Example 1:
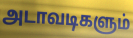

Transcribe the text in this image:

அடாவடிகளும்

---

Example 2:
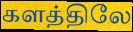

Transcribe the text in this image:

களத்திலே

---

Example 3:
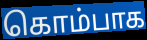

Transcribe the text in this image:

கொம்பாக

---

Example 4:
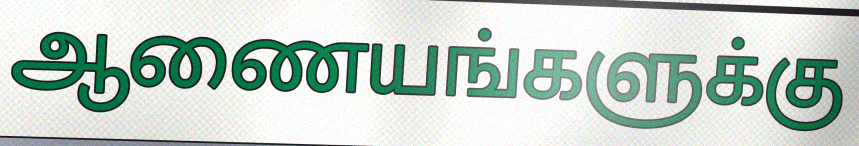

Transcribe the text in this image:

ஆணையங்களுக்கு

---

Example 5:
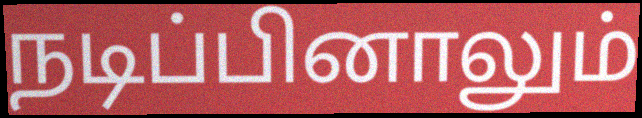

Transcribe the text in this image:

நடிப்பினாலும்